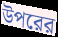
উপরের